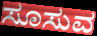
ಸೂಸುವ